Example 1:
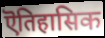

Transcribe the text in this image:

ऎतिहासिक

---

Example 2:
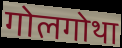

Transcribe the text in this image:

गोलगोथा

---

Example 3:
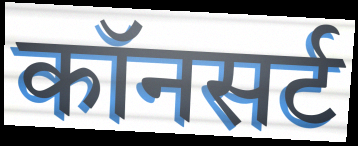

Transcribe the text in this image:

कॉनसर्ट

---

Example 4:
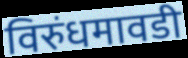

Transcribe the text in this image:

विरुंधमावडी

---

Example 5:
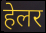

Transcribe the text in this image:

हेलर